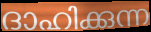
ദാഹിക്കുന്ന